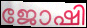
ജോഷി